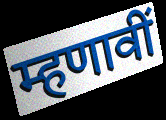
म्हणावीं